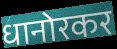
धानोरकर